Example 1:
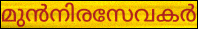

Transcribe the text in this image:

മുൻനിരസേവകർ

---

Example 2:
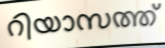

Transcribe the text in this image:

റിയാസത്ത്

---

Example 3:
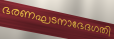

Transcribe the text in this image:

ഭരണഘടനാഭേദഗതി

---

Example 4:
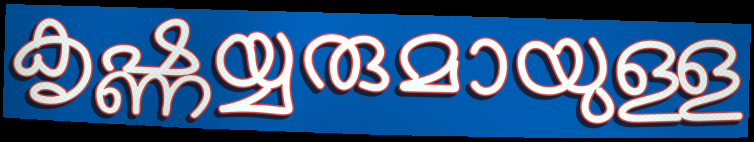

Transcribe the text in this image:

കൃഷ്ണയ്യരുമായുള്ള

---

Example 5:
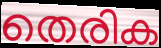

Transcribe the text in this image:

തെരിക